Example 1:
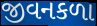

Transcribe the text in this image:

જીવનકળા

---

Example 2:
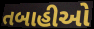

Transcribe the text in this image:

તબાહીઓ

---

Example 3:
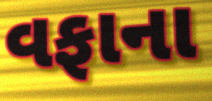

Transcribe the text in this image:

વફાના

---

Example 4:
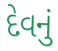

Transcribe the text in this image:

દેવનું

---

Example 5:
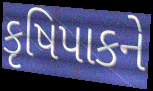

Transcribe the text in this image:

કૃષિપાકને